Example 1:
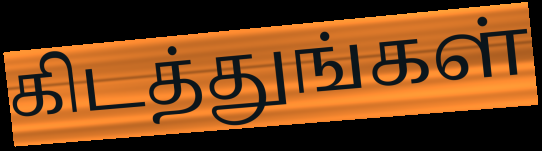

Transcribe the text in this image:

கிடத்துங்கள்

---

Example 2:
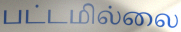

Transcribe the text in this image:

பட்டமில்லை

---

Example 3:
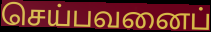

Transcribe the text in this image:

செய்பவனைப்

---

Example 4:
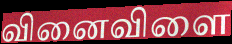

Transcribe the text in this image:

வினைவிளை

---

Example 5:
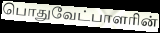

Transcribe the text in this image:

பொதுவேட்பாளரின்